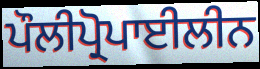
ਪੌਲੀਪ੍ਰੋਪਾਈਲੀਨ